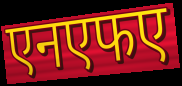
एनएफए